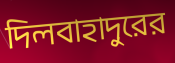
দিলবাহাদুরের